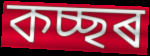
কচ্ছৰ